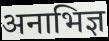
अनाभिज्ञ